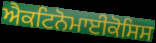
ਐਕਟਿਨੋਮਾਈਕੋਸਿਸ